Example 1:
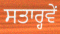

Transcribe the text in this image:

ਸਤਾਰ੍ਹਵੇਂ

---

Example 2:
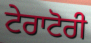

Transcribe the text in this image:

ਟੇਰਾਟੋਰੀ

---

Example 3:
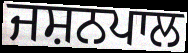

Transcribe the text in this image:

ਜਸ਼ਨਪਾਲ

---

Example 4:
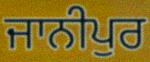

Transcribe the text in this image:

ਜਾਨੀਪੁਰ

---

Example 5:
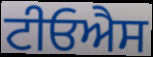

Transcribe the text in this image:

ਟੀਓਐਸ